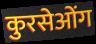
कुरसेओंग